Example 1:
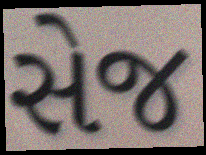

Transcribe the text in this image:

સેજ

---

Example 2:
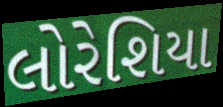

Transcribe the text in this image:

લોરેશિયા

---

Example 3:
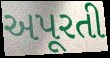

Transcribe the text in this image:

અપૂરતી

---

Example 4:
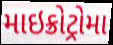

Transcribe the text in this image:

માઇક્રોટ્રોમા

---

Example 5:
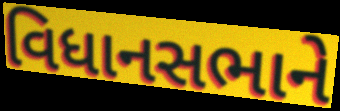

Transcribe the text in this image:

વિધાનસભાને